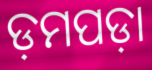
ଡ଼ମପଡ଼ା